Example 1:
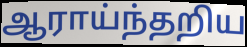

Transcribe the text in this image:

ஆராய்ந்தறிய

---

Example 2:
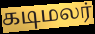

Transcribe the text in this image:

கடிமலர்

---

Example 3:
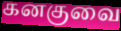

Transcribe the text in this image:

கனகுவை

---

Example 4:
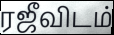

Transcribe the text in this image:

ரஜீவிடம்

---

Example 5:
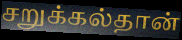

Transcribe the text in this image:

சறுக்கல்தான்